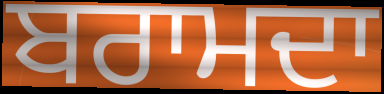
ਬਰਾਮਦਾ